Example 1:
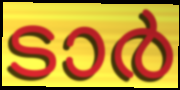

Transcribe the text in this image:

ടാർ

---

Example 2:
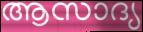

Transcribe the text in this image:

ആസാദ്യ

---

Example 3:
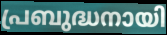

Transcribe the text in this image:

പ്രബുദ്ധനായി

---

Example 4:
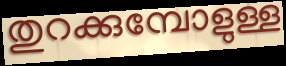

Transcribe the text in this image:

തുറക്കുമ്പോളുള്ള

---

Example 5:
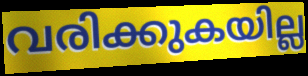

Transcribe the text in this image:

വരിക്കുകയില്ല